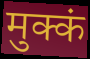
मुक्कं